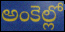
అంకెల్లో